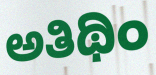
ಅತಿಥಿಂ